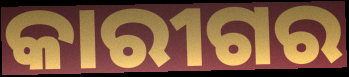
କାରୀଗର